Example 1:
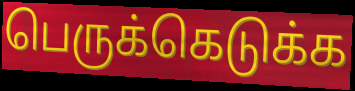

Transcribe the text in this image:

பெருக்கெடுக்க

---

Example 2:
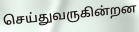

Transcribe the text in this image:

செய்துவருகின்றன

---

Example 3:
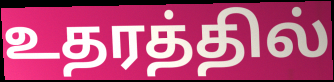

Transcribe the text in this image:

உதரத்தில்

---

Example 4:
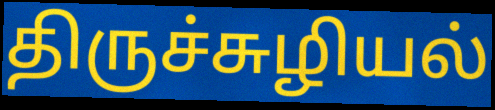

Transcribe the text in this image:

திருச்சுழியல்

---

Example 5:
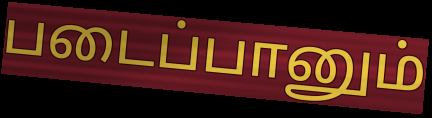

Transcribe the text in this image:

படைப்பானும்